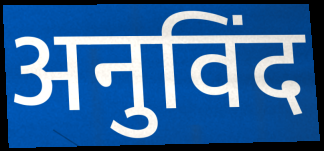
अनुविंद